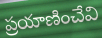
ప్రయాణించేవి